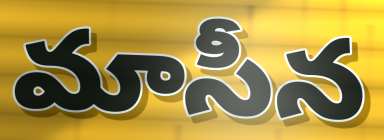
మాసీన